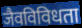
जैवविविधता